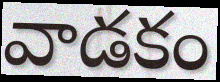
వాడకం